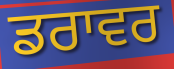
ਡਰਾਵਰ